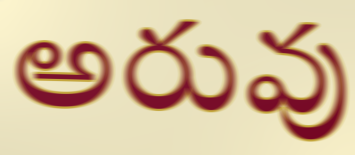
అరువు